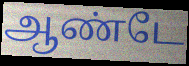
ஆண்டே